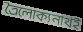
ত্রৈলোক্যনাথই